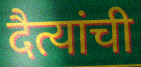
दैत्यांची